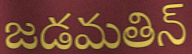
జడమతిన్